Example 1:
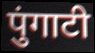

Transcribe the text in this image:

पुंगाटी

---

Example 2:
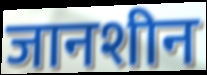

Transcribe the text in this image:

जानशीन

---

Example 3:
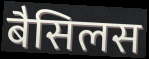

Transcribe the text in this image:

बैसिलस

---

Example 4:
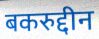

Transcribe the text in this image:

बकरुद्दीन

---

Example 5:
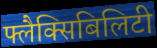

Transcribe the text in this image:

फ्लैक्सिबिलिटी